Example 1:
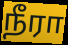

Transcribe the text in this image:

நீரா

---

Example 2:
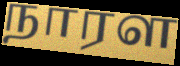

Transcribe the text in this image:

நாரள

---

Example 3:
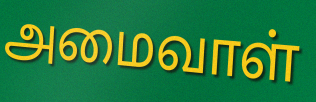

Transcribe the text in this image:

அமைவாள்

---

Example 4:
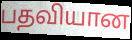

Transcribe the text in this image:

பதவியான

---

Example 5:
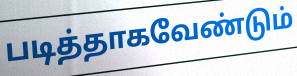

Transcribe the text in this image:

படித்தாகவேண்டும்